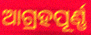
ଆଗ୍ରହପୂର୍ଣ୍ଣ